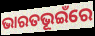
ଭାରତଭୂଇଁରେ